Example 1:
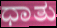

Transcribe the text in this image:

ಧಾತು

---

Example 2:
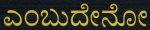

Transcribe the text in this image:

ಎಂಬುದೇನೋ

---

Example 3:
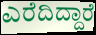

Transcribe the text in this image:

ಎರೆದಿದ್ದಾರೆ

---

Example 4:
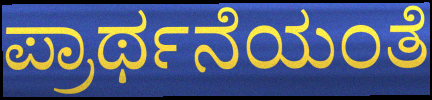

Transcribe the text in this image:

ಪ್ರಾರ್ಥನೆಯಂತೆ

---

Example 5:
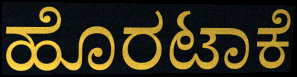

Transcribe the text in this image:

ಹೊರಟಾಕೆ